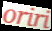
oriri